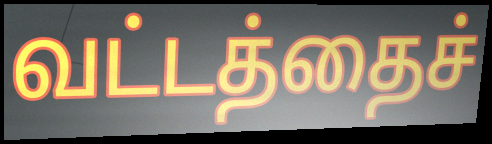
வட்டத்தைச்